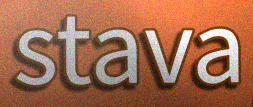
stava